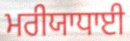
ਮਰੀਯਾਧਾਈ